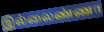
இல்லைண்ணா